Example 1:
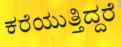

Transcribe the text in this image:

ಕರೆಯುತ್ತಿದ್ದರೆ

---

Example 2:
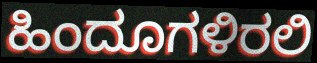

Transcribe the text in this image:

ಹಿಂದೂಗಳಿರಲಿ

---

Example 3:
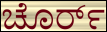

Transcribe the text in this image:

ಚೊರ್ರ್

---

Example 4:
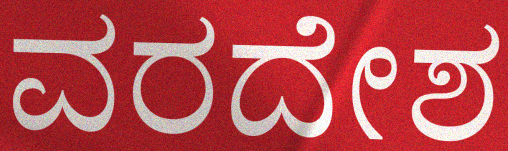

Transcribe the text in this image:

ವರದೇಶ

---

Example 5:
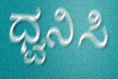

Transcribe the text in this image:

ಧ್ವನಿಸಿ